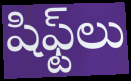
షిఫ్ట్‌లు